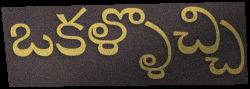
ఒకళ్ళొచ్చి